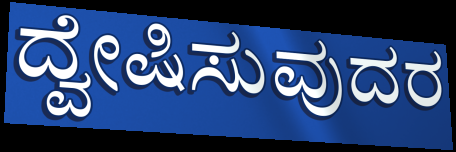
ದ್ವೇಷಿಸುವುದರ